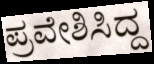
ಪ್ರವೇಶಿಸಿದ್ದ